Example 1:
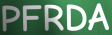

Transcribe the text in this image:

PFRDA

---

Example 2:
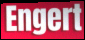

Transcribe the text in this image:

Engert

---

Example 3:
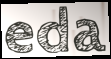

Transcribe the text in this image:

eda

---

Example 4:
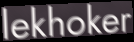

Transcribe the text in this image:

lekhoker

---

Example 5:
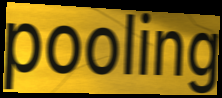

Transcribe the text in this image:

pooling